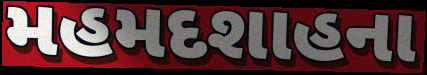
મહમદશાહના